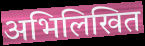
अभिलिखित